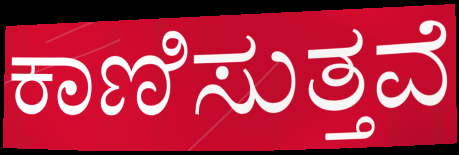
ಕಾಣಿಸುತ್ತವೆ